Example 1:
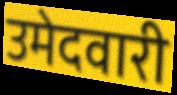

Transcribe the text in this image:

उमेदवारी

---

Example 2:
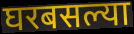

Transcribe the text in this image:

घरबसल्या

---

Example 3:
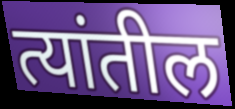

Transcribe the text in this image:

त्यांतील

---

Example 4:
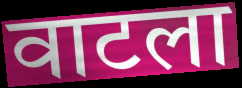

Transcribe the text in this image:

वाटला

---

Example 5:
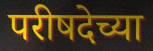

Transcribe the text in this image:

परीषदेच्या